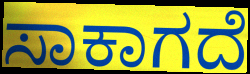
ಸಾಕಾಗದೆ